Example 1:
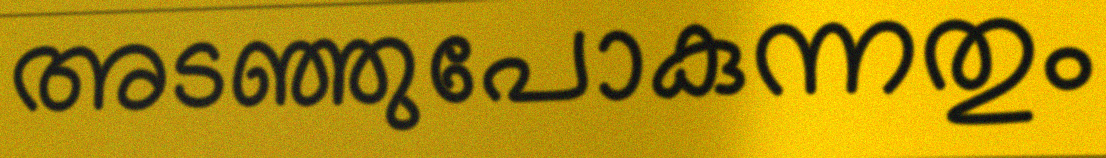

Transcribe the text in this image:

അടഞ്ഞുപോകുന്നതും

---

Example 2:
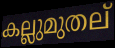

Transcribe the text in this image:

കല്ലുമുതല്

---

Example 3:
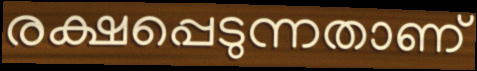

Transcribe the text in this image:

രക്ഷപ്പെടുന്നതാണ്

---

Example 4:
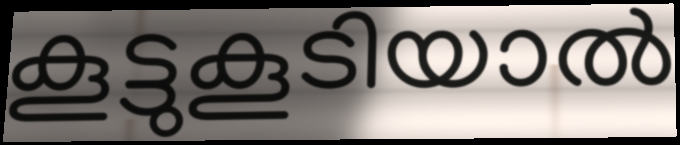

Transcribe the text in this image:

കൂട്ടുകൂടിയാൽ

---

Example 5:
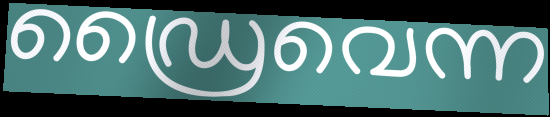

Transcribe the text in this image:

ഡ്രൈവെന്ന